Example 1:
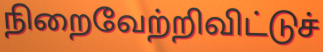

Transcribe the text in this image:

நிறைவேற்றிவிட்டுச்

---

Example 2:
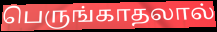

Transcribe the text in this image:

பெருங்காதலால்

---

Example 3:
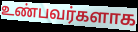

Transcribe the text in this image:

உண்பவர்களாக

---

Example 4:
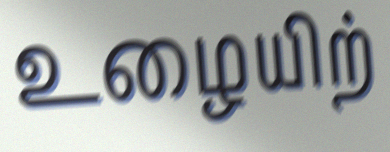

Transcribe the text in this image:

உழையிற்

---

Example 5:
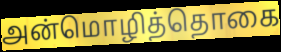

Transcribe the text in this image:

அன்மொழித்தொகை